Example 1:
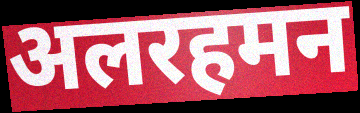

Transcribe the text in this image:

अलरहमन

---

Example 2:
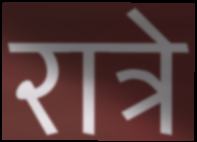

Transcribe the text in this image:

रात्रे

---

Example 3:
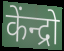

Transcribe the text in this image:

केंन्द्रो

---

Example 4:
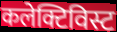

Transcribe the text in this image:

कलेक्टिविस्ट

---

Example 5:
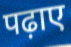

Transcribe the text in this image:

पढ़ाए